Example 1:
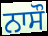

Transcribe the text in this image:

ਨਾਸੌ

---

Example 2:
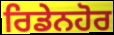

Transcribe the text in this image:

ਰਿਡੇਨਹੋਰ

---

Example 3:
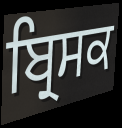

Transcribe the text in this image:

ਬ੍ਰਿਸਕ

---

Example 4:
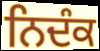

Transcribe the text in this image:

ਨਿਦੰਕ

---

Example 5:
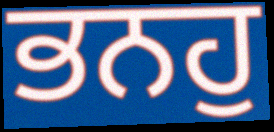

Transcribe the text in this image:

ਭਨਹੁ